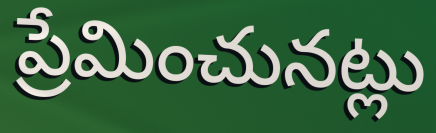
ప్రేమించునట్లు